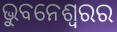
ଭୁବନେଶ୍ବରର